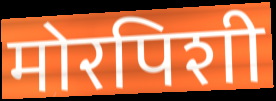
मोरपिशी